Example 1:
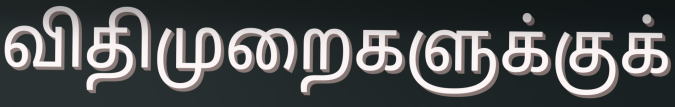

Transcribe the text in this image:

விதிமுறைகளுக்குக்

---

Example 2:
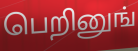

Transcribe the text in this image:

பெறினுங்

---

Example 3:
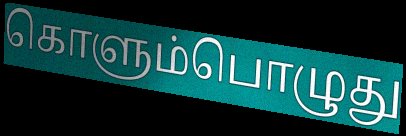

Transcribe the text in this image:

கொளும்பொழுது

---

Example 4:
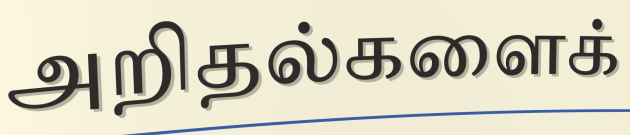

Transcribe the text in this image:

அறிதல்களைக்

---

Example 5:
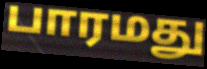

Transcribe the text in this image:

பாரமது